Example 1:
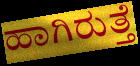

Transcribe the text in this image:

ಹಾಗಿರುತ್ತೆ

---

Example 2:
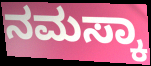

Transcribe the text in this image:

ನಮಸ್ಕಾ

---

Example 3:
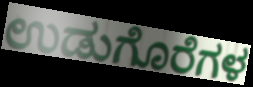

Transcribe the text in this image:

ಉಡುಗೊರೆಗಳ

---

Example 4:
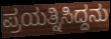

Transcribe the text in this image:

ಪ್ರಯತ್ನಿಸಿದ್ದನು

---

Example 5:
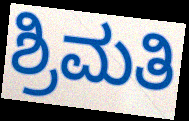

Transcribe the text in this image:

ಶ್ರಿಮತಿ